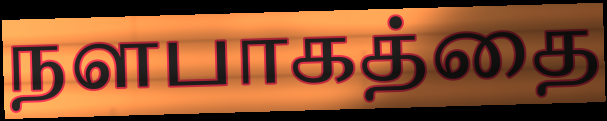
நளபாகத்தை